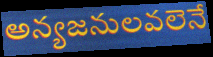
అన్యజనులవలెనే